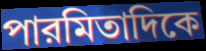
পারমিতাদিকে